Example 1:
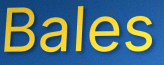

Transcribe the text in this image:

Bales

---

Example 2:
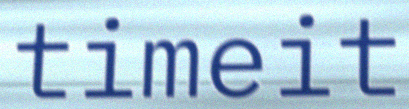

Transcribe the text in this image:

timeit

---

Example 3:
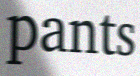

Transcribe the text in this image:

pants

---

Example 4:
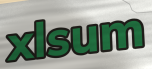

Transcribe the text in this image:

xlsum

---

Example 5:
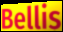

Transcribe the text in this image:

Bellis